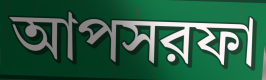
আপসরফা